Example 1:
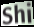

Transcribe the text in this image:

Shi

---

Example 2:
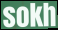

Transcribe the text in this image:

sokh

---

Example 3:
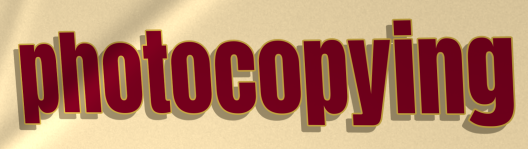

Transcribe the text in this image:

photocopying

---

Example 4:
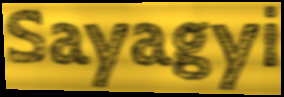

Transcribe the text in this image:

Sayagyi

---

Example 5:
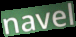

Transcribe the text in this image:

navel